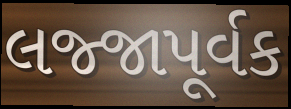
લજ્જાપૂર્વક